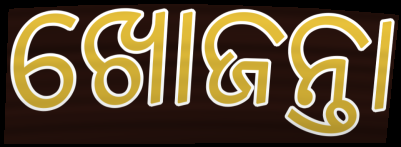
ଖୋଜନ୍ତା